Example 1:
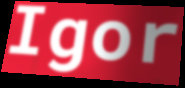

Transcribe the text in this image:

Igor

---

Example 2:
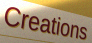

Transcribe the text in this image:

Creations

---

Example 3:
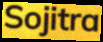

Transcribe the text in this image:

Sojitra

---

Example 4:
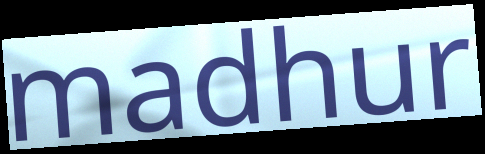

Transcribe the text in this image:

madhur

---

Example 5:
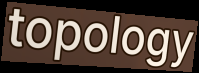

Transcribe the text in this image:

topology